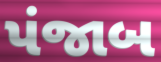
પંજાબ